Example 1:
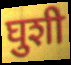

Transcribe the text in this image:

घुशी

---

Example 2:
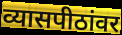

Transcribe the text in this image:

व्यासपीठांवर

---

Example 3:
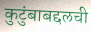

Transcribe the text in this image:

कुटुंबाबद्दलची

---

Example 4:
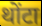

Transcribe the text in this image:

थोंटा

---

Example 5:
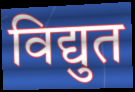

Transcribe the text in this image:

विद्युत